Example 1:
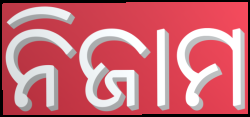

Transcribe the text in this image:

ନିଜାମ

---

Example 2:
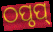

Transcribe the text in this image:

ଠପ୍ଠପ୍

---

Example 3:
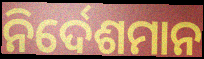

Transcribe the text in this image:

ନିର୍ଦେଶମାନ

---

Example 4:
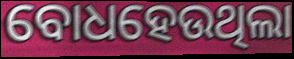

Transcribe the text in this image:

ବୋଧହେଉଥିଲା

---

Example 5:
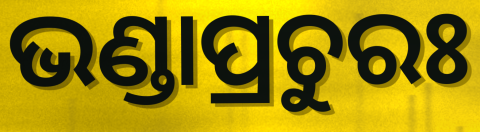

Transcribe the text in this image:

ଭଣ୍ଡାପ୍ରଚୁରଃ